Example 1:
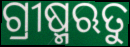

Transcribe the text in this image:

ଗ୍ରୀଷ୍ମଋତୁ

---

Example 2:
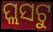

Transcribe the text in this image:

ପ୍ଲସଟୁ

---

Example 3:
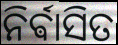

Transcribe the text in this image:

ନିର୍ଵାସିତ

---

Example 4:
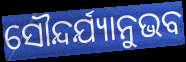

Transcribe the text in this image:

ସୌନ୍ଦର୍ଯ୍ୟାନୁଭବ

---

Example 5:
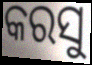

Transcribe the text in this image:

କରସୁ